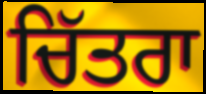
ਚਿੱਤਰਾ